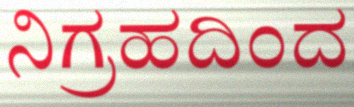
ನಿಗ್ರಹದಿಂದ